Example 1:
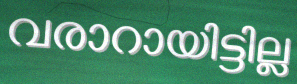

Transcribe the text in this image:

വരാറായിട്ടില്ല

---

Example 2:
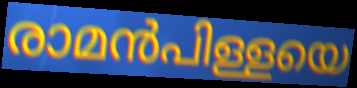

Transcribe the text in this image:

രാമൻപിള്ളയെ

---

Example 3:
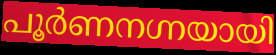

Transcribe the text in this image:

പൂർണനഗ്നയായി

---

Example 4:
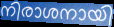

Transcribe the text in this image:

നിരാശനായി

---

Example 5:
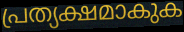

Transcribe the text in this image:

പ്രത്യക്ഷമാകുക